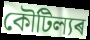
কৌটিল্যৰ